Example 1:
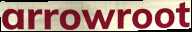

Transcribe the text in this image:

arrowroot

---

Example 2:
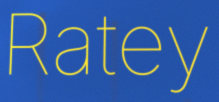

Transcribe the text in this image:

Ratey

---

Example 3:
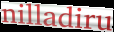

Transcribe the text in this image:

nilladiru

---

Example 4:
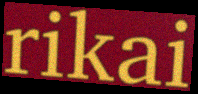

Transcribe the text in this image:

rikai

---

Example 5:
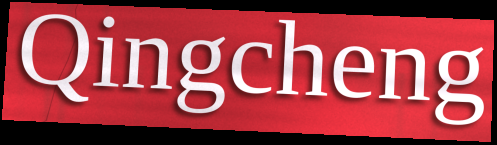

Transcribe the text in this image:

Qingcheng